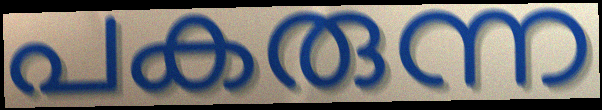
പകരുന്ന